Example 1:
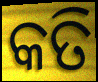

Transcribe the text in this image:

କତି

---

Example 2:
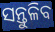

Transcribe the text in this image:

ସନ୍ତୁଳିବ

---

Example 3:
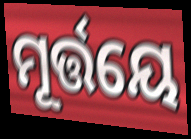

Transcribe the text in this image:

ମୂର୍ତ୍ତୟେ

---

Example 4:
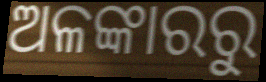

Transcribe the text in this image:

ଅଳଙ୍କାରରୁ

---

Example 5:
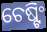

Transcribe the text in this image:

ଚେଷ୍ଟିଂ